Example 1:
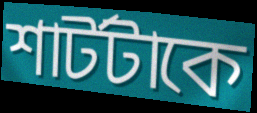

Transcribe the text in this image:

শার্টটাকে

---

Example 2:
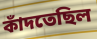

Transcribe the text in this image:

কাঁদতেছিল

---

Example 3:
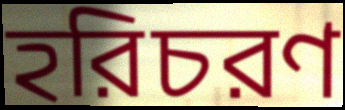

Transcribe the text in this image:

হরিচরণ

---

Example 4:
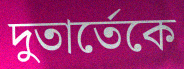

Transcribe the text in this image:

দুতার্তেকে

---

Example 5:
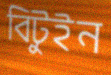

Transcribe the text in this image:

বিটুইন